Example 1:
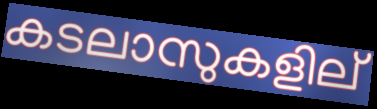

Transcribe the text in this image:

കടലാസുകളില്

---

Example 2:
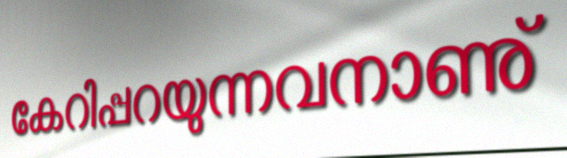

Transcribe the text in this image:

കേറിപ്പറയുന്നവനാണു്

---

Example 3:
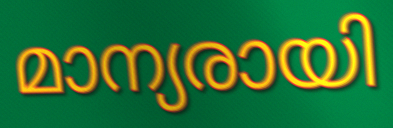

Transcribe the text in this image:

മാന്യരായി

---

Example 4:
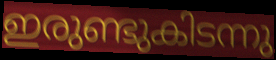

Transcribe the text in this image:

ഇരുണ്ടുകിടന്നു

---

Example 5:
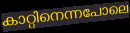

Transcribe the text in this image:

കാറ്റിനെന്നപോലെ